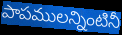
పాపములన్నింటినీ